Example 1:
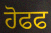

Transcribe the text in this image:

ਹੋਫਫ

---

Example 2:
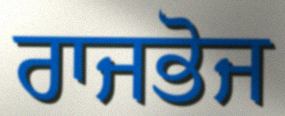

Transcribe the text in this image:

ਰਾਜਭੋਜ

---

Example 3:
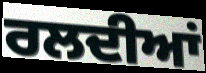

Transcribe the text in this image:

ਰਲਦੀਆਂ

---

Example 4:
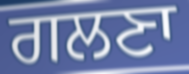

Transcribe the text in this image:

ਗਲਣਾ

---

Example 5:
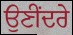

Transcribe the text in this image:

ਉਣੀਂਦਰੇ